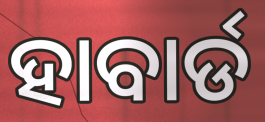
ହାବାର୍ଡ